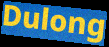
Dulong